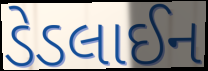
ડેડલાઈન